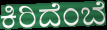
ಕಿರಿದೆಂಬೆ